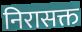
निरासक्त